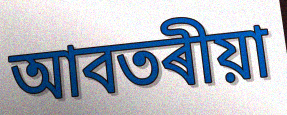
আবতৰীয়া